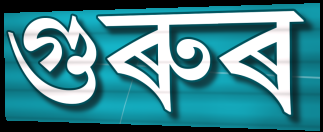
গুৰুৰ